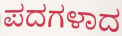
ಪದಗಳಾದ